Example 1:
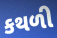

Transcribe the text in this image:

કથળી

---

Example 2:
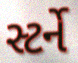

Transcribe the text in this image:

સ્ટર્ને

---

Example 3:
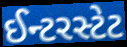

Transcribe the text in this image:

ઈન્ટરસ્ટેટ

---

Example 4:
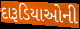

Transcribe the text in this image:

દારૂડિયાઓની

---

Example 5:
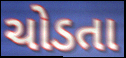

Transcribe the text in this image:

ચોડતા